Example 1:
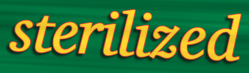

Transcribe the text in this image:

sterilized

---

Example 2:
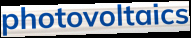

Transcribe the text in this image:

photovoltaics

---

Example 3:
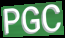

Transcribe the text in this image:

PGC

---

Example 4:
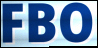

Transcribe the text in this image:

FBO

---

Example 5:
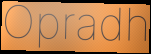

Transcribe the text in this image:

Opradh